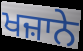
ਖਜ਼ਾਨੇ